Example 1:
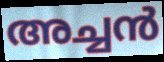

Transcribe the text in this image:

അച്ചൻ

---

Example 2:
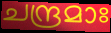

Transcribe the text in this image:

ചന്ദ്രമാഃ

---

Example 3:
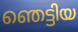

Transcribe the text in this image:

ഞെട്ടിയ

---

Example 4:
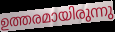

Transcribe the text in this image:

ഉത്തരമായിരുന്നു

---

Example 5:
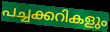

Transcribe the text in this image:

പച്ചക്കറികളും